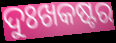
ଦୁଃଖକଷ୍ଟର